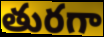
తురగా